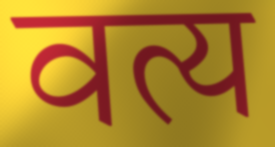
वत्य